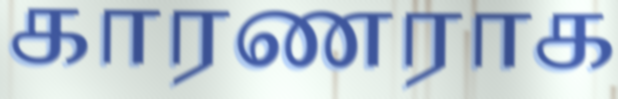
காரணராக